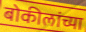
बोकीलांच्या